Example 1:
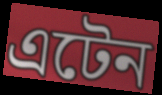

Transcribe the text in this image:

এটেন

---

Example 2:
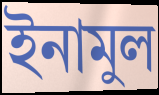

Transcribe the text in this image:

ইনামুল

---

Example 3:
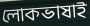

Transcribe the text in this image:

লোকভাষাই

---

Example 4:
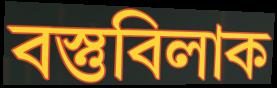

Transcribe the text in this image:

বস্তুবিলাক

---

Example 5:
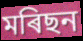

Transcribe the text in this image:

মৰিছন